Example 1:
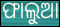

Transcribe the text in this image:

ଫାଲୁଆ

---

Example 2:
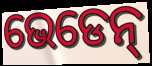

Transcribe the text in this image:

ଭେଡେନ୍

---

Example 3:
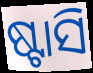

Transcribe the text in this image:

ଷ୍ଟାସି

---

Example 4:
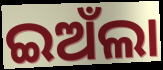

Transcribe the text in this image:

ଇଅଁଲା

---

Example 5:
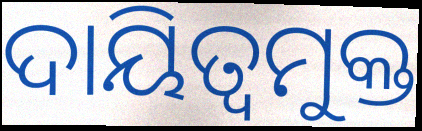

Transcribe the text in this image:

ଦାୟିତ୍ୱମୁକ୍ତ